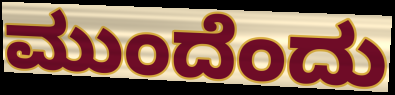
ಮುಂದೆಂದು